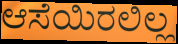
ಆಸೆಯಿರಲಿಲ್ಲ